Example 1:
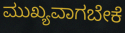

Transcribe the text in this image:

ಮುಖ್ಯವಾಗಬೇಕೆ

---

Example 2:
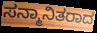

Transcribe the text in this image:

ಸನ್ಮಾನಿತರಾದ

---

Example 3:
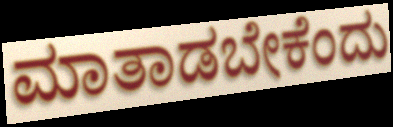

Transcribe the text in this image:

ಮಾತಾಡಬೇಕೆಂದು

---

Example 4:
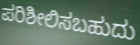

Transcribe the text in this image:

ಪರಿಶೀಲಿಸಬಹುದು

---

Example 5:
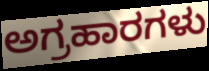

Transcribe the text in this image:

ಅಗ್ರಹಾರಗಳು